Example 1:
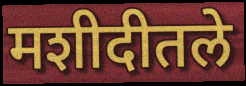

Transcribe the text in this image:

मशीदीतले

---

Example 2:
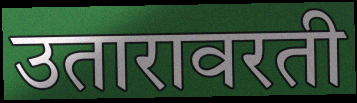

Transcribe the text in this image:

उतारावरती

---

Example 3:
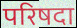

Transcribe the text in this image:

परिषदा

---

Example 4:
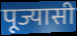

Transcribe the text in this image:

पूज्यासी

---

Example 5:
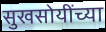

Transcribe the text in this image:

सुखसोयींच्या